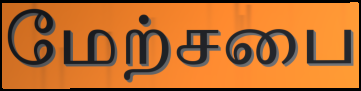
மேற்சபை